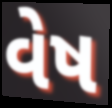
વેષ